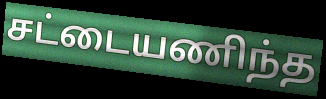
சட்டையணிந்த